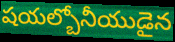
షయల్బోనీయుడైన